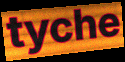
tyche